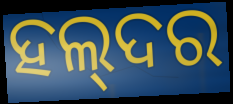
ହଲ୍‌ଦର